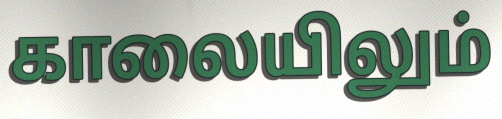
காலையிலும்